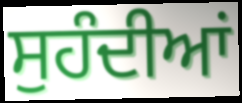
ਸੁਹੰਦੀਆਂ